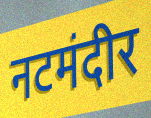
नटमंदीर